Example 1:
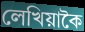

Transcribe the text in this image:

লেখিয়াকৈ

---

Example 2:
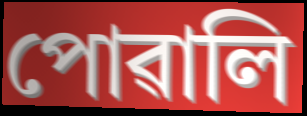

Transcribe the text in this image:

পোৱালি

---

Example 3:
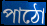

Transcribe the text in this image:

পাঠো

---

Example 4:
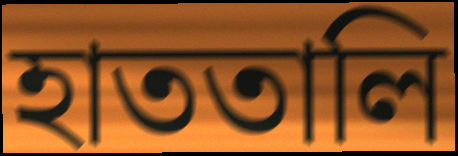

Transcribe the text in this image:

হাততালি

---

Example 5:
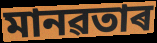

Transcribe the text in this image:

মানৱতাৰ